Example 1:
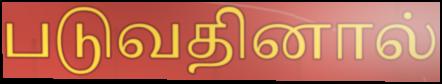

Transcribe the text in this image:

படுவதினால்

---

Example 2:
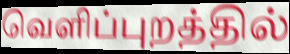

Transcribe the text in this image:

வெளிப்புறத்தில்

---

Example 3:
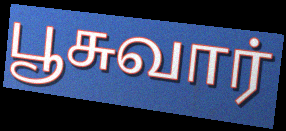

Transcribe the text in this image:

பூசுவார்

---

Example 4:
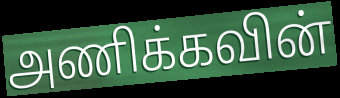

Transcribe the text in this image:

அணிக்கவின்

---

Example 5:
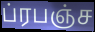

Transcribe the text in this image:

ப்ரபஞ்ச